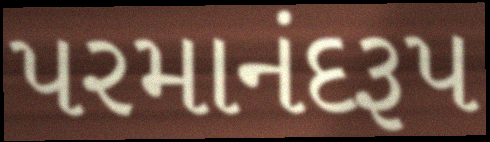
પરમાનંદરૂપ